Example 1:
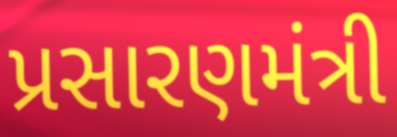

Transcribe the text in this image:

પ્રસારણમંત્રી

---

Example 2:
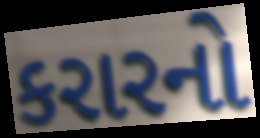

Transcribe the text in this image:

કરારનો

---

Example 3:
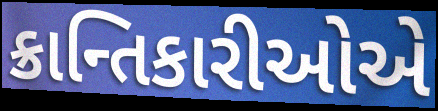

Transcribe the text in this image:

ક્રાન્તિકારીઓએ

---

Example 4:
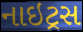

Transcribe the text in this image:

નાઇટ્રસ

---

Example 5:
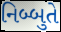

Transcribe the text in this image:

નિબ્બુતે